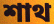
শাথ